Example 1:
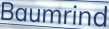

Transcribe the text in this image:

Baumrind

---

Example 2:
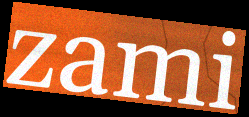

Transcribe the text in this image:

zami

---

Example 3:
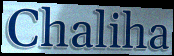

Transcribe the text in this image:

Chaliha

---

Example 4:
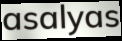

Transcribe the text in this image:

asalyas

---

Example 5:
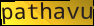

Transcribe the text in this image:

pathavu